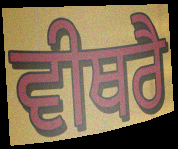
ਵੀਥਰੈ